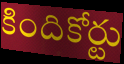
కిందికోర్టు